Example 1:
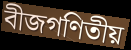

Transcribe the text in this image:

বীজগণিতীয়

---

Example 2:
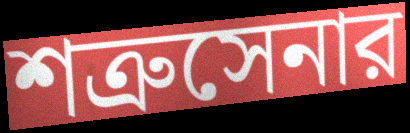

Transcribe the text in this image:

শত্রুসেনার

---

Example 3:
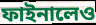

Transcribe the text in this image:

ফাইনালেও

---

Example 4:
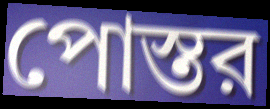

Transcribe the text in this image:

পোস্তর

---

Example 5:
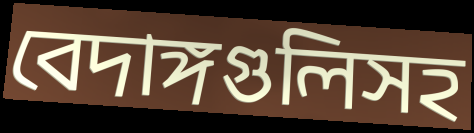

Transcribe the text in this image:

বেদাঙ্গগুলিসহ